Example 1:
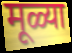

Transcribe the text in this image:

मूळ्या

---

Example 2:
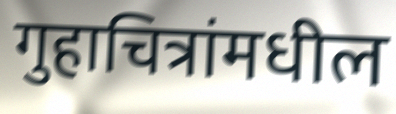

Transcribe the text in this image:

गुहाचित्रांमधील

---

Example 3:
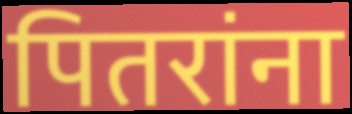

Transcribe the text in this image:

पितरांना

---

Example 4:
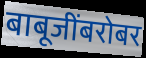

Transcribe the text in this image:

बाबूजींबरोबर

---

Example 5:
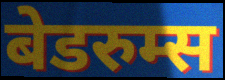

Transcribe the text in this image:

बेडरुम्स